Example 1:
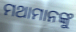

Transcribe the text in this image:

ମଥାମାନଙ୍କୁ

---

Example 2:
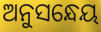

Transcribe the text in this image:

ଅନୁସନ୍ଧେୟ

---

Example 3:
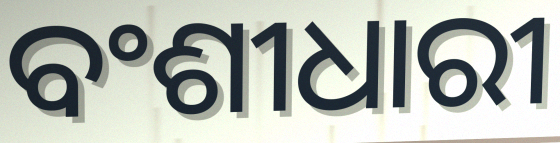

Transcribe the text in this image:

ବଂଶୀଧାରୀ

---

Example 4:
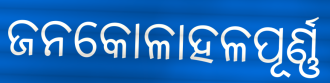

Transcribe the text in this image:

ଜନକୋଳାହଳପୂର୍ଣ୍ଣ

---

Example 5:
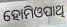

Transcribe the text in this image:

ହୋମିଓପାଥି